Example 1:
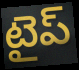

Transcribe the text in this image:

టైప్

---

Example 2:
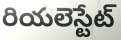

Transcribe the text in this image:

రియలెస్టేట్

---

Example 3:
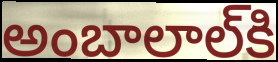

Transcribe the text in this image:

అంబాలాల్‌కి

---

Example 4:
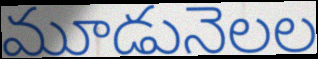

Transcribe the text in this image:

మూడునెలల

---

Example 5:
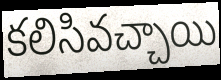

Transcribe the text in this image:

కలిసివచ్చాయి